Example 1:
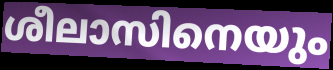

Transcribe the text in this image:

ശീലാസിനെയും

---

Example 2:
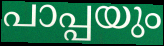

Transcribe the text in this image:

പാപ്പയും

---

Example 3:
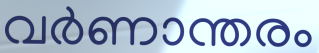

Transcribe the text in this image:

വർണാന്തരം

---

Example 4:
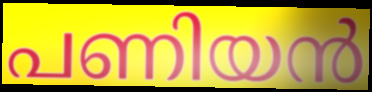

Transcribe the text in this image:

പണിയൻ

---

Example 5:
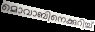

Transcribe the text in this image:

മൊവാബിനെക്കുറിച്ച്